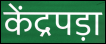
केंद्रपड़ा